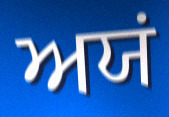
ਅਯਂ